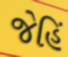
જેહિં